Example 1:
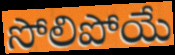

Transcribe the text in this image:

సోలిపోయే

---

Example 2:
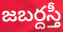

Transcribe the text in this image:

జబర్దస్తీ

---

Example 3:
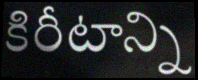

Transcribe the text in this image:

కిరీటాన్ని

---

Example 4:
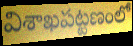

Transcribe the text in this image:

విశాఖపట్టణంలో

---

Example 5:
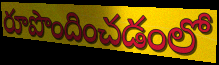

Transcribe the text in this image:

రూపొందించడంలో